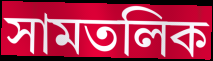
সামতলিক